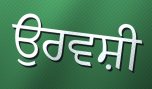
ਉਰਵਸ਼ੀ